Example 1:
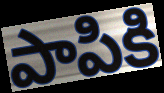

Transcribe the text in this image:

పాపికి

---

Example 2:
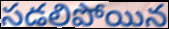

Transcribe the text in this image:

సడలిపోయిన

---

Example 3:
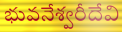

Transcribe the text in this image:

భువనేశ్వరీదేవి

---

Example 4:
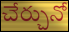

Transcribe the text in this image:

చేర్చునో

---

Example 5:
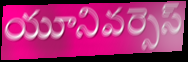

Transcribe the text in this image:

యూనివర్సెస్